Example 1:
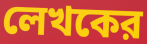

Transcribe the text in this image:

লেখকের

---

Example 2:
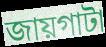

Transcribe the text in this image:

জায়গাটা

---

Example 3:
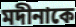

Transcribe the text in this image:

মদীনাকে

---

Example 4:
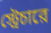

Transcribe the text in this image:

স্ট্রেচারে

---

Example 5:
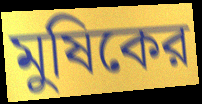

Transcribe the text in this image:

মুষিকের